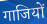
गाजियों